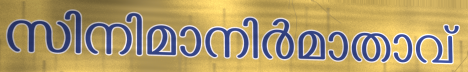
സിനിമാനിർമാതാവ്